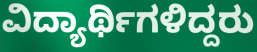
ವಿದ್ಯಾರ್ಥಿಗಳಿದ್ದರು